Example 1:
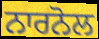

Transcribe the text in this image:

ਨਾਰਨੋਲ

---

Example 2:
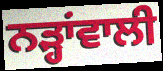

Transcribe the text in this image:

ਨੜ੍ਹਾਂਵਾਲੀ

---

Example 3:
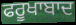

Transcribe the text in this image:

ਫਰੂਖਾਬਾਦ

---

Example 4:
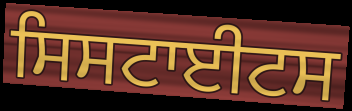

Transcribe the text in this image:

ਸਿਸਟਾਈਟਸ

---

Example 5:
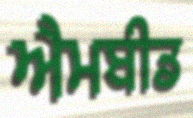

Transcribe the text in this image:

ਐਮਬੀਡ